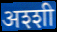
अश्शी